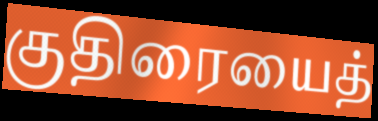
குதிரையைத்